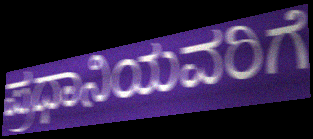
ಪ್ರಧಾನಿಯವರಿಗೆ